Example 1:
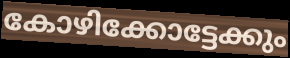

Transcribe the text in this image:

കോഴിക്കോട്ടേക്കും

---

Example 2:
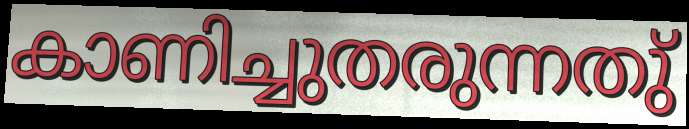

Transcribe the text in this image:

കാണിച്ചുതരുന്നതു്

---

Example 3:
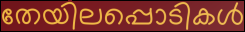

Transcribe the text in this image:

തേയിലപ്പൊടികൾ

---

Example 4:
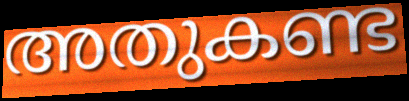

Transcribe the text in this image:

അതുകണ്ട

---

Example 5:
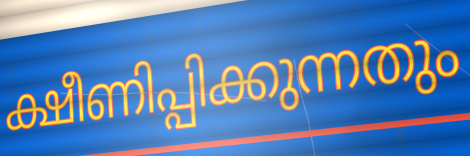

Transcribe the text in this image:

ക്ഷീണിപ്പിക്കുന്നതും